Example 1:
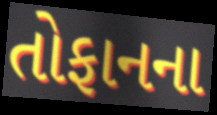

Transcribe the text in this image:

તોફાનના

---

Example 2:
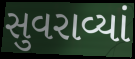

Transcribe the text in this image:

સુવરાવ્યાં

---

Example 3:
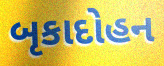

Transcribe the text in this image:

બૃકાદોહન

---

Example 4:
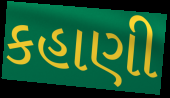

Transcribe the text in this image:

કહાણી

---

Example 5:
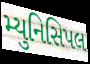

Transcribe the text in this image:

મ્યુનિસિપલ